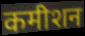
कमीशन